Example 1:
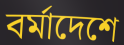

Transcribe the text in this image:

বর্মাদেশে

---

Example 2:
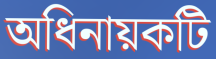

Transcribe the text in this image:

অধিনায়কটি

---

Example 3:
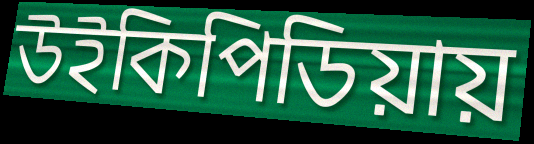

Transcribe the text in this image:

উইকিপিডিয়ায়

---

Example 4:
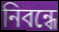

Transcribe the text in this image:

নিবন্ধে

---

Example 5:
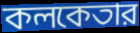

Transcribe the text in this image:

কলকেতার